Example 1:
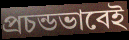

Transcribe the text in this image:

প্রচন্ডভাবেই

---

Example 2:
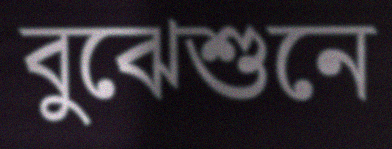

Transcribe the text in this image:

বুঝেশুনে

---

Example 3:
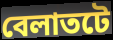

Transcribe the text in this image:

বেলাতটে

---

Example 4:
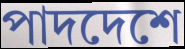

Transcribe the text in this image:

পাদদেশে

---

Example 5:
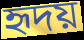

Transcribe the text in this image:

হৃদয়